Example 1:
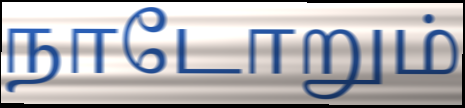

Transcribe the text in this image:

நாடோறும்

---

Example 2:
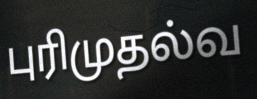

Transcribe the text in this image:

புரிமுதல்வ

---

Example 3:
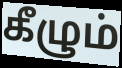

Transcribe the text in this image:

கீழும்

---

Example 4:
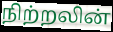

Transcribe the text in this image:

நிற்றலின்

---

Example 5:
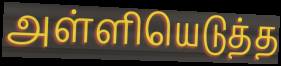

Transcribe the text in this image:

அள்ளியெடுத்த